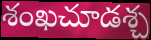
శంఖచూడశ్చ